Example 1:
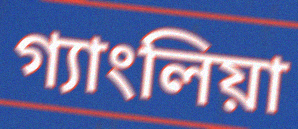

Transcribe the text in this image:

গ্যাংলিয়া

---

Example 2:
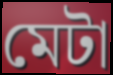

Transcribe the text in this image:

মেটা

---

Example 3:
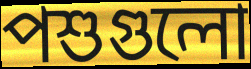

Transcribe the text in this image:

পশুগুলো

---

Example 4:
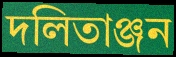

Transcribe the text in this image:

দলিতাঞ্জন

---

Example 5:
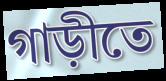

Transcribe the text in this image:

গাড়ীতে